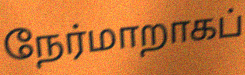
நேர்மாறாகப்